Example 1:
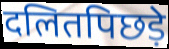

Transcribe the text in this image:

दलितपिछड़े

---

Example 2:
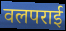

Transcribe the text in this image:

वलपराई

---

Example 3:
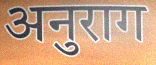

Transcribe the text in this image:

अनुराग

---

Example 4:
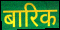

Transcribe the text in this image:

बारिक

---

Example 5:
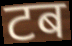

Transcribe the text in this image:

टब